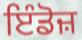
ਇੰਡੋਜ਼